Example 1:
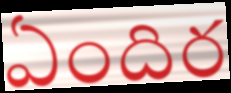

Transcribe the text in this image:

ఏందిర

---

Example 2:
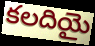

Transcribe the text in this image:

కలదియై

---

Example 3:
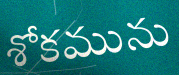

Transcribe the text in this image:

శోకమును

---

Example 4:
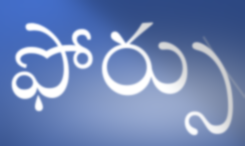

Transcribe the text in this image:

ఫోర్సు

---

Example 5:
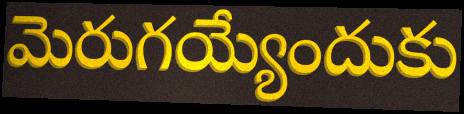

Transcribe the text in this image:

మెరుగయ్యేందుకు